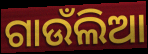
ଗାଉଁଲିଆ